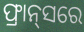
ଫ୍ରାନ୍‌ସରେ